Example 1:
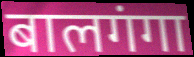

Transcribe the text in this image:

बालगंगा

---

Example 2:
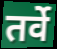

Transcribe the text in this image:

तर्वे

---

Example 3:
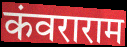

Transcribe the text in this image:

कंवराराम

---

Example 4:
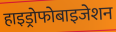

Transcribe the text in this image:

हाइड्रोफोबाइजेशन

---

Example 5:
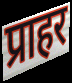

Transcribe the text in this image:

प्राहर